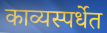
काव्यस्पर्धेत